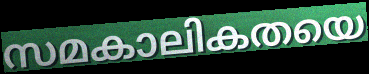
സമകാലികതയെ